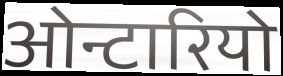
ओन्टारियो